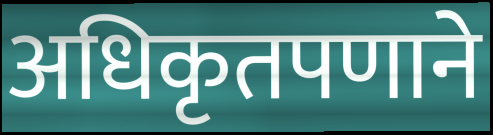
अधिकृतपणाने